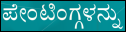
ಪೇಂಟಿಂಗ್ಗಳನ್ನು